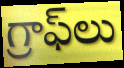
గ్రాఫ్‌లు